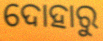
ଦୋହାରୁ